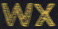
WX